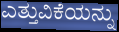
ಎತ್ತುವಿಕೆಯನ್ನು